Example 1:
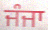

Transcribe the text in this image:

ਜੰਜਾ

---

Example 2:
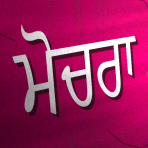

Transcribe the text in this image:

ਮੋਚਰਾ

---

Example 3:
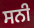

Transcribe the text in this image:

ਸਨੀ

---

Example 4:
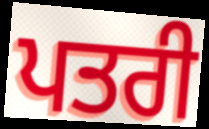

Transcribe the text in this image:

ਪਤਰੀ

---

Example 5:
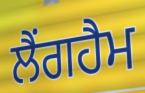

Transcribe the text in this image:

ਲੈਂਗਹੈਮ